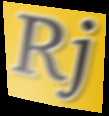
Rj